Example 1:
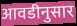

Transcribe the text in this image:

आवडीनुसार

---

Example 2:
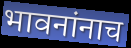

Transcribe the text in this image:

भावनांनाच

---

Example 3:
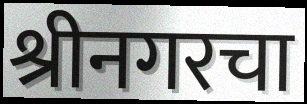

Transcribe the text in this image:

श्रीनगरचा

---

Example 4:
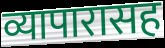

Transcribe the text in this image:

व्यापारासह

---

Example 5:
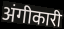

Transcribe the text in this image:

अंगीकारी